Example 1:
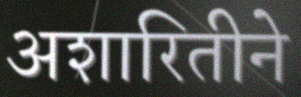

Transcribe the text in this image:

अशारितीने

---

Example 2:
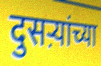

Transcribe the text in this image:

दुसऱ्‍यांच्या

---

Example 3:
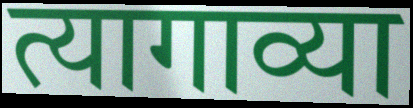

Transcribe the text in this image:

त्यागाव्या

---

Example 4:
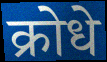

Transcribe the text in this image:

क्रोधे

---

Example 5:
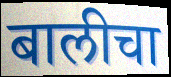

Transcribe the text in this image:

बालीचा